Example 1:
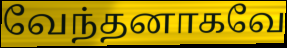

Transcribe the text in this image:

வேந்தனாகவே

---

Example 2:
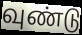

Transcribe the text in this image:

வுண்டு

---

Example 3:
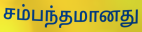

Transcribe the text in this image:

சம்பந்தமானது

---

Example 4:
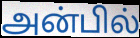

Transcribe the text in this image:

அன்பில்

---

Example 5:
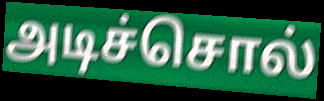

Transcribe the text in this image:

அடிச்சொல்